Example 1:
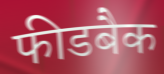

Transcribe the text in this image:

फीडबैक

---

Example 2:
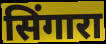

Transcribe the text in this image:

सिंगारा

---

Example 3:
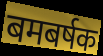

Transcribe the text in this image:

बमबर्षक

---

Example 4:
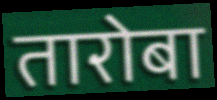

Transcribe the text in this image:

तारोबा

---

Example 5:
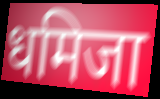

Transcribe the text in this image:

धमिजा